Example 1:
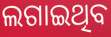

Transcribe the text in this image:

ଲଗାଇଥିବ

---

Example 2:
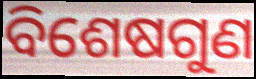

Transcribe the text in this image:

ବିଶେଷଗୁଣ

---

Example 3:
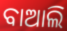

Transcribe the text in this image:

ବାଆଲି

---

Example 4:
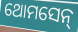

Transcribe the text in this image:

ଥୋମସେନ୍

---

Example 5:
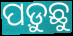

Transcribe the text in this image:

ପଡ଼ୁଛୁ